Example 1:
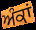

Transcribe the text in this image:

ਅੰਕਾਂ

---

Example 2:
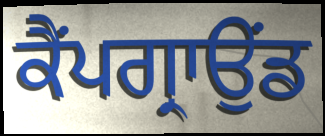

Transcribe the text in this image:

ਕੈਂਪਗ੍ਰਾਉਂਡ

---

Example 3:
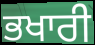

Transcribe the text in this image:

ਭਖਾਰੀ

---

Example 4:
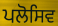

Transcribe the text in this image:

ਪਲੋਸਿਵ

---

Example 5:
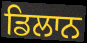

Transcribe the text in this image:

ਡਿਲਾਨ